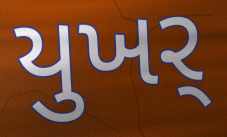
યુખર્